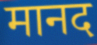
मानद